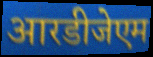
आरडीजेएम